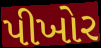
પીખોર